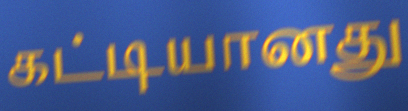
கட்டியானது